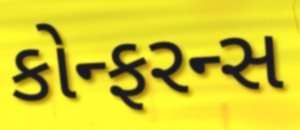
કોન્ફરન્સ